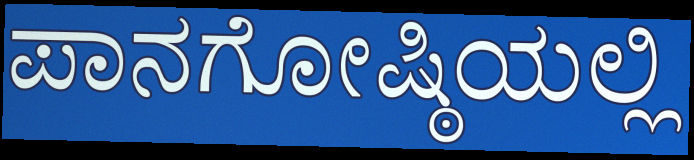
ಪಾನಗೋಷ್ಠಿಯಲ್ಲಿ